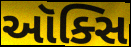
ઑક્સિ